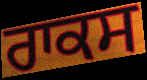
ਰਾਕਸ